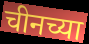
चीनच्या